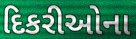
દિકરીઓના